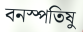
বনস্পতিষু